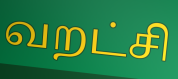
வறட்சி